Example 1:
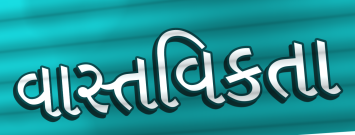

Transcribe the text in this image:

વાસ્તવિકતા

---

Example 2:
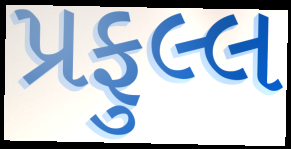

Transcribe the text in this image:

પ્રફુલ્લ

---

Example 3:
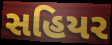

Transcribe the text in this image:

સહિયર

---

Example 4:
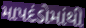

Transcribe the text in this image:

માપદંડોમાંથી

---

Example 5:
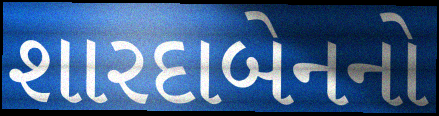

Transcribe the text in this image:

શારદાબેનનો